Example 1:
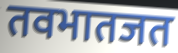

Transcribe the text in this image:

तवभातजत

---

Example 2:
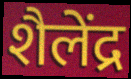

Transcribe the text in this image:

शैलेंद्र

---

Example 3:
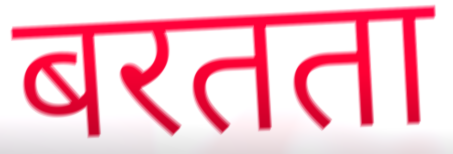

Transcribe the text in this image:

बरतता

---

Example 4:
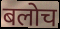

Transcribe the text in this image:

बलोच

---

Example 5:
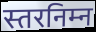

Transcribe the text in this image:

स्तरनिम्न